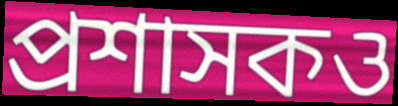
প্রশাসকও